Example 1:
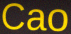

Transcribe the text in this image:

Cao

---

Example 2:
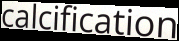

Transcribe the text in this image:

calcification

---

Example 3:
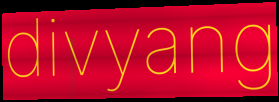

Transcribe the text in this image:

divyang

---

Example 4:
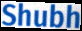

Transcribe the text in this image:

Shubh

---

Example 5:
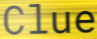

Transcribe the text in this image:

Clue